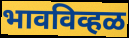
भावविव्हळ